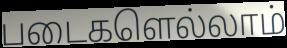
படைகளெல்லாம்